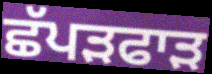
ਛੱਪੜਫਾੜ